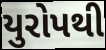
યુરોપથી